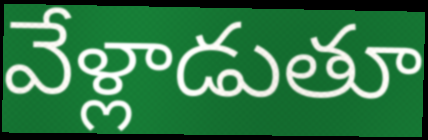
వేళ్లాడుతూ